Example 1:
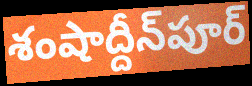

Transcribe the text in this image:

శంషాద్దీన్‌పూర్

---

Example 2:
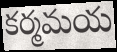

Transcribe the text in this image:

కర్మమయ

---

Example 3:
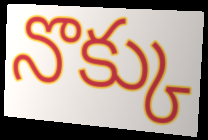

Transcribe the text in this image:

నొక్కు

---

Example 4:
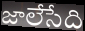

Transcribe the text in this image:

జాలేసేది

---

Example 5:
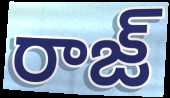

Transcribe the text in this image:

రాజ్